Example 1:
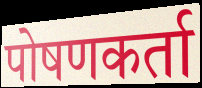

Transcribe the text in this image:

पोषणकर्ता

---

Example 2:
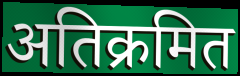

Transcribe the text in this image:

अतिक्रमित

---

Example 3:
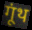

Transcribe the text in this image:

गूंथ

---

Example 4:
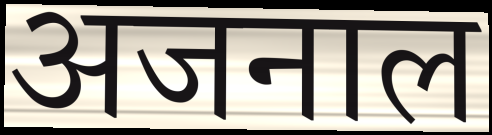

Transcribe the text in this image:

अजनाल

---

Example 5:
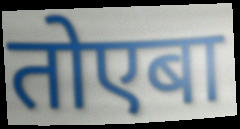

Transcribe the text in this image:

तोएबा